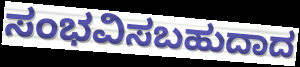
ಸಂಭವಿಸಬಹುದಾದ